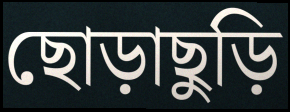
ছোড়াছুড়ি